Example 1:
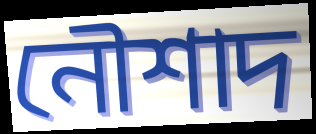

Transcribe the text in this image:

নৌশাদ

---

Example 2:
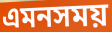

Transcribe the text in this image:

এমনসময়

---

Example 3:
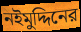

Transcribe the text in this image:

নইমুদ্দিনের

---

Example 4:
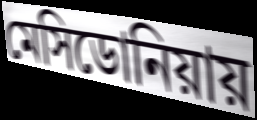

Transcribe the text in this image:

মেসিডোনিয়ায়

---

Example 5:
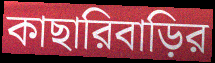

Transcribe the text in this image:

কাছারিবাড়ির